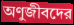
অণুজীবদের